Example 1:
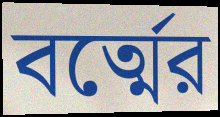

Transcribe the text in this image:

বর্ত্মের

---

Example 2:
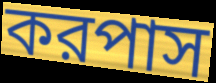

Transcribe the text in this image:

করপাস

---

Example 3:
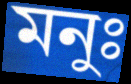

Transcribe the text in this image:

মনুঃ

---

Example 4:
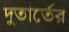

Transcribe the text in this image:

দুতার্তের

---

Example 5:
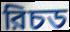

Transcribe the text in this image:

রিচড